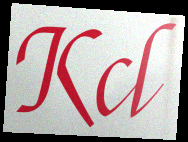
Kcl